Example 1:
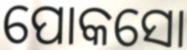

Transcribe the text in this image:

ପୋକସୋ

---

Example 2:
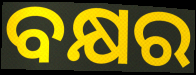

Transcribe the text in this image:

ବକ୍ଷର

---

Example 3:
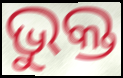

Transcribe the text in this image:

ଭୁକ୍ତ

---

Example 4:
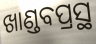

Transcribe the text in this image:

ଖାଣ୍ଡବପ୍ରସ୍ଥ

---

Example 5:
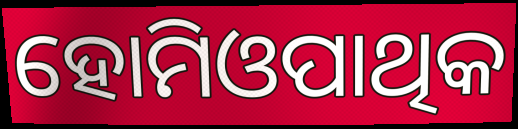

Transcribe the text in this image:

ହୋମିଓପାଥିକ